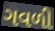
ગવળી